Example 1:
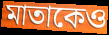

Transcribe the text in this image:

মাতাকেও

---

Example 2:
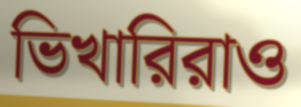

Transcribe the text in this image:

ভিখারিরাও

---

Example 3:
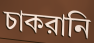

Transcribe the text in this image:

চাকরানি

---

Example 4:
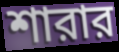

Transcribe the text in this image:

শারার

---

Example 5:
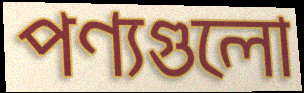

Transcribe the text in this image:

পণ্যগুলো